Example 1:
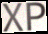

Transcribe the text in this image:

XP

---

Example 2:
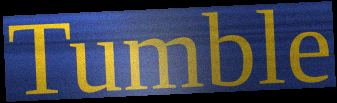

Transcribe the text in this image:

Tumble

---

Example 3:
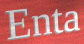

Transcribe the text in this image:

Enta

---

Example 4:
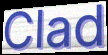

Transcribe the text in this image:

Clad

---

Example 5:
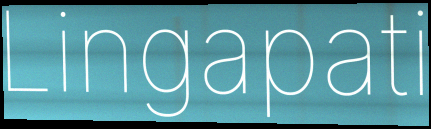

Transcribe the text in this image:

Lingapati